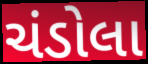
ચંડોલા